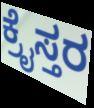
ಕ್ರೈಸ್ತರ